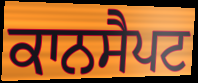
ਕਾਨਸੈਪਟ